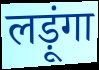
लड़ूंगा